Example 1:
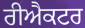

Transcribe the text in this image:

ਰੀਐਕਟਰ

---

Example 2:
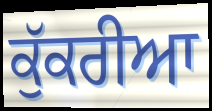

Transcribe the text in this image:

ਕੁੱਕਰੀਆ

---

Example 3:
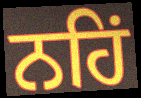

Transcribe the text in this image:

ਨਹਿਂ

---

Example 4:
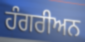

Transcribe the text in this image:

ਹੰਗਰੀਅਨ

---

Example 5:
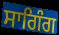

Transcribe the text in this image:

ਸਾਗਿੰਗ